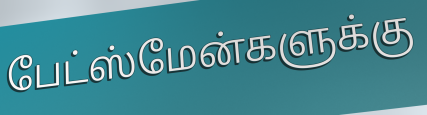
பேட்ஸ்மேன்களுக்கு